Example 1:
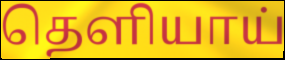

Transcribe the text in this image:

தெளியாய்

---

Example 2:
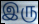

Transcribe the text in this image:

இரு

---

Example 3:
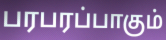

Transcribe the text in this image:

பரபரப்பாகும்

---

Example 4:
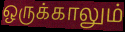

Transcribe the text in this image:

ஒருக்காலும்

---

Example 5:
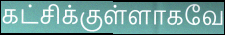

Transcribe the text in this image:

கட்சிக்குள்ளாகவே